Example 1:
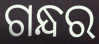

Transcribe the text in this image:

ଗନ୍ଧର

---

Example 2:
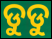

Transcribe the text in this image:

ଡୁଡୁ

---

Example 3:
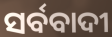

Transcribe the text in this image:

ସର୍ବବାଦୀ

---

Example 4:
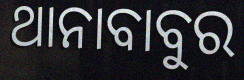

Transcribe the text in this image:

ଥାନାବାବୁର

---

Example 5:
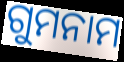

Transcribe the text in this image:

ଗୁମନାମ